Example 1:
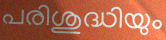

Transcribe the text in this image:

പരിശുദ്ധിയും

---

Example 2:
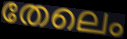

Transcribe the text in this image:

തേലെം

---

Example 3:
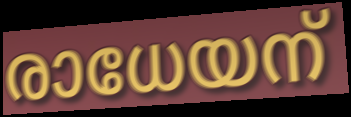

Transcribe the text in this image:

രാധേയന്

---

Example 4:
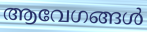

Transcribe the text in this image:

ആവേഗങ്ങൾ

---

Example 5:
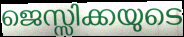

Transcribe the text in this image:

ജെസ്സിക്കയുടെ